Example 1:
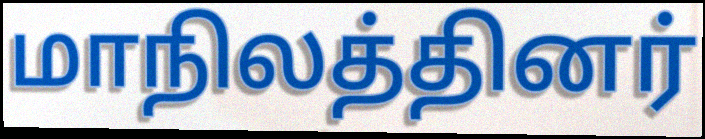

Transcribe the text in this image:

மாநிலத்தினர்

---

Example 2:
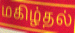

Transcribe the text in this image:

மகிழ்தல்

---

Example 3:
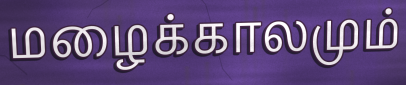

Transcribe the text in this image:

மழைக்காலமும்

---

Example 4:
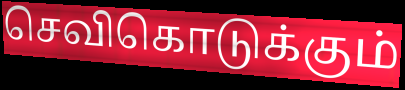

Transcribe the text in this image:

செவிகொடுக்கும்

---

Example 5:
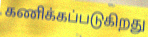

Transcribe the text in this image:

கணிக்கப்படுகிறது